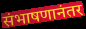
संभाषणानंतर